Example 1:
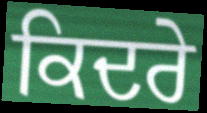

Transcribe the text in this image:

ਕਿਦਰੇ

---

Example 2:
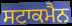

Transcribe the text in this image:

ਸਟਾਕਮੈਨ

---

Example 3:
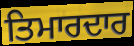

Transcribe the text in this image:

ਤਿਮਾਰਦਾਰ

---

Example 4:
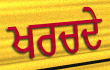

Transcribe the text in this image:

ਖਰਚਦੇ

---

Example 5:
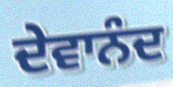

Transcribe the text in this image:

ਦੇਵਾਨੰਦ